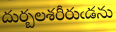
దుర్బలశరీరుఁడను